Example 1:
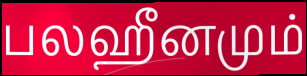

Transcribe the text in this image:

பலஹீனமும்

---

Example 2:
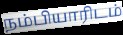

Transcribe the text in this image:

நம்பியாரிடம்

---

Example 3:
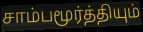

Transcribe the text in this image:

சாம்பமூர்த்தியும்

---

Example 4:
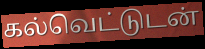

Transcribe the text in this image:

கல்வெட்டுடன்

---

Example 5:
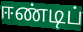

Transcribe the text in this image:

ஈண்டிப்